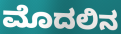
ಮೊದಲಿನ